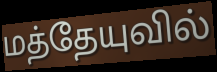
மத்தேயுவில்